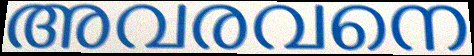
അവരവനെ